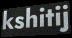
kshitij